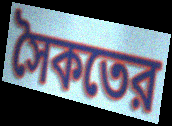
সৈকতের